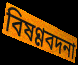
বিষণ্ণবদনা